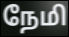
நேமி